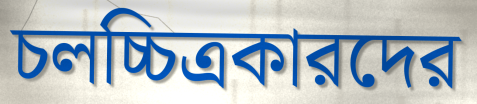
চলচ্চিত্রকারদের